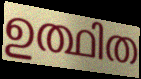
ഉത്ഥിത